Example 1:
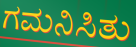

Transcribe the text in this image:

ಗಮನಿಸಿತು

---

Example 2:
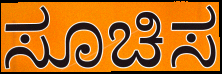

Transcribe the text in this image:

ಸೂಚಿಸ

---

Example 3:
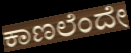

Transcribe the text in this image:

ಕಾಣಲೆಂದೇ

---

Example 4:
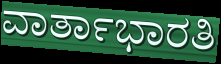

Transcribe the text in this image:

ವಾರ್ತಾಭಾರತಿ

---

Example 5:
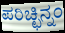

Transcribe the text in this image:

ಪರಿಚ್ಛಿನ್ನಂ